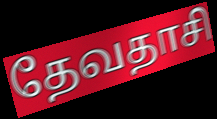
தேவதாசி